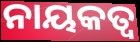
ନାୟକତ୍ୱ